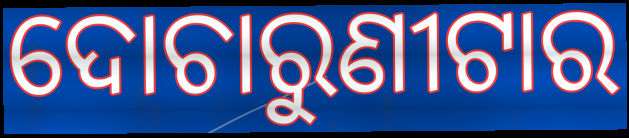
ଦୋଚାରୁଣୀଟାର